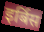
इर्बिस